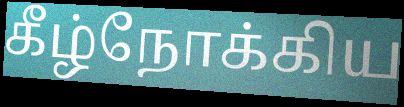
கீழ்நோக்கிய